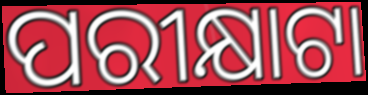
ପରୀକ୍ଷାଟା